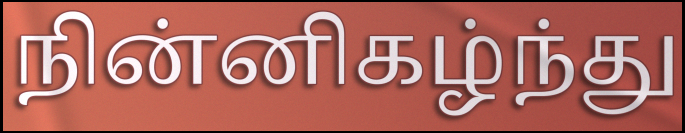
நின்னிகழ்ந்து